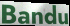
Bandu